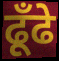
ढूँढे